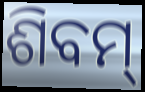
ଶିବମ୍